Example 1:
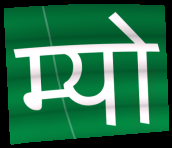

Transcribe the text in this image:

म्यो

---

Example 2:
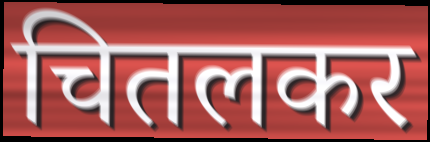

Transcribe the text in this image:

चितलकर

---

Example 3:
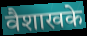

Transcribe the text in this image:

वैशाखके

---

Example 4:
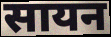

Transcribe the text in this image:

सायन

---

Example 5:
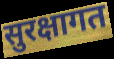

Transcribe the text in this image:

सुरक्षागत